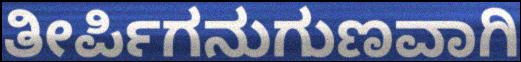
ತೀರ್ಪಿಗನುಗುಣವಾಗಿ